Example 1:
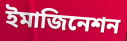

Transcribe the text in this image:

ইমাজিনেশন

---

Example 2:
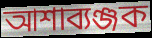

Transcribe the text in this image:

আশাব্যঞ্জক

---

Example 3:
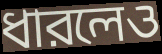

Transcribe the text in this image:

ধারলেও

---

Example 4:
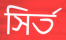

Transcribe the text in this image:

সির্ত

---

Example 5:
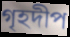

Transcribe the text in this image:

গৃহদীপ